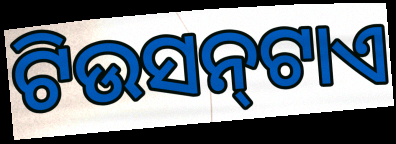
ଟିଉସନ୍‍ଟାଏ